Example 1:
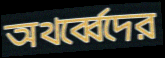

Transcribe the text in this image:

অথর্ব্বেদের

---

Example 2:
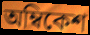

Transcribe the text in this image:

অম্বিকেশ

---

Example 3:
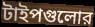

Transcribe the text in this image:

টাইপগুলোর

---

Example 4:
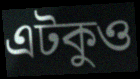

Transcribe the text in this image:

এটকুও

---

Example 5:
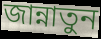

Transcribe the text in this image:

জান্নাতুন